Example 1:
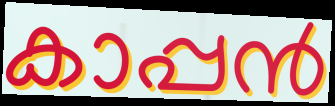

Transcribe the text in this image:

കാപ്പൻ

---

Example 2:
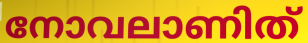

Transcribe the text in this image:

നോവലാണിത്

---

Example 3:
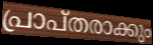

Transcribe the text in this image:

പ്രാപ്തരാക്കും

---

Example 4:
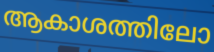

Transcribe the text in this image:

ആകാശത്തിലോ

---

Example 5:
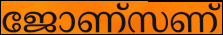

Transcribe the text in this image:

ജോണ്സണ്